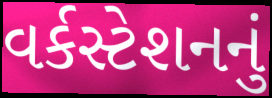
વર્કસ્ટેશનનું